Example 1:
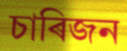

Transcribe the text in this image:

চাৰিজন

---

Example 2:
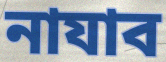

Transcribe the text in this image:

নাযাব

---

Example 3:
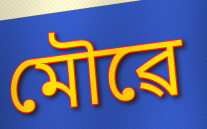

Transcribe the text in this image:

মৌৱে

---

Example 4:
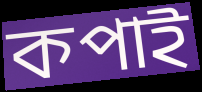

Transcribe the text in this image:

কপাই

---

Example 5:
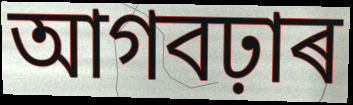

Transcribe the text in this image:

আগবঢ়াৰ